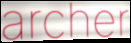
archer